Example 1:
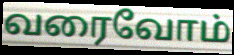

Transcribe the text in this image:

வரைவோம்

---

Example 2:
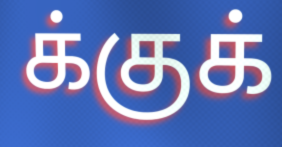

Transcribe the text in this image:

க்குக்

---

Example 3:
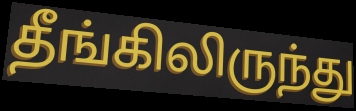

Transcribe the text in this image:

தீங்கிலிருந்து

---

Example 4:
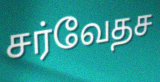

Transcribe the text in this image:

சர்வேதச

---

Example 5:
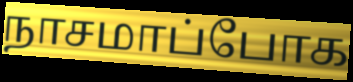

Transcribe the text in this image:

நாசமாப்போக